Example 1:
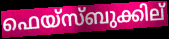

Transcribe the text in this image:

ഫെയ്സ്ബുക്കില്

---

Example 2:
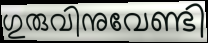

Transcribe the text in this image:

ഗുരുവിനുവേണ്ടി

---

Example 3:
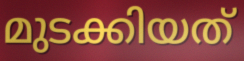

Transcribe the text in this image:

മുടക്കിയത്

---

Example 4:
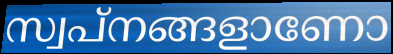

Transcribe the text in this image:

സ്വപ്നങ്ങളാണോ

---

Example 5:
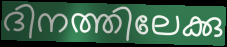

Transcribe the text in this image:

ദിനത്തിലേക്കു